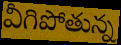
వీగిపోతున్న